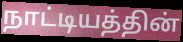
நாட்டியத்தின்